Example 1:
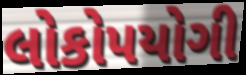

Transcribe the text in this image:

લોકોપયોગી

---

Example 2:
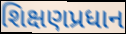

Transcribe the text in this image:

શિક્ષણપ્રધાન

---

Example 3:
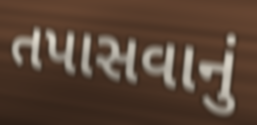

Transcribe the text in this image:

તપાસવાનું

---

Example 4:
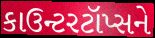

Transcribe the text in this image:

કાઉન્ટરટૉપ્સને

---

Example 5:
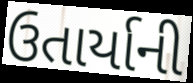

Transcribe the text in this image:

ઉતાર્યાની